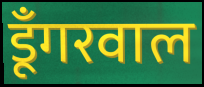
डूँगरवाल